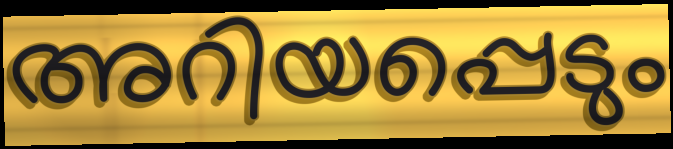
അറിയപ്പെടും